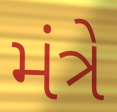
મંત્રે